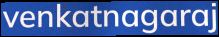
venkatnagaraj